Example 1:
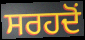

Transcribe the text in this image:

ਸਰਹਦੋਂ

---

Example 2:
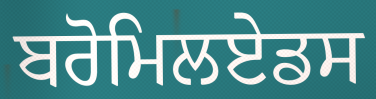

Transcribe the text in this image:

ਬਰੋਮਿਲਏਡਸ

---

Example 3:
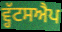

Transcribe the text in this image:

ਵ੍ਹੱਟਸਐਪ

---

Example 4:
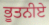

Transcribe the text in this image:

ਭੂਤਨੀਏ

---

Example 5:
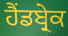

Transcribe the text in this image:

ਹੈਂਡਬ੍ਰੇਕ